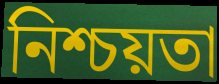
নিশ্চয়তা